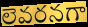
లెవరనగా